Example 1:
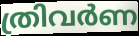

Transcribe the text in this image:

ത്രിവർണ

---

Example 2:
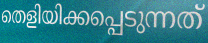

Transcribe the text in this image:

തെളിയിക്കപ്പെടുന്നത്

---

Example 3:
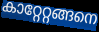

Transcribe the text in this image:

കാറ്റേറ്റങ്ങനെ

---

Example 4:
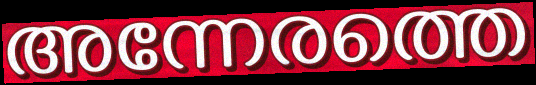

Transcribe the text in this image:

അന്നേരത്തെ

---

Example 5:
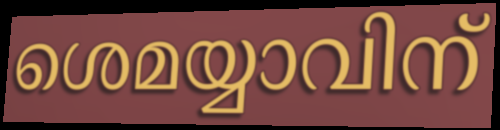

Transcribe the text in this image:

ശെമയ്യാവിന്